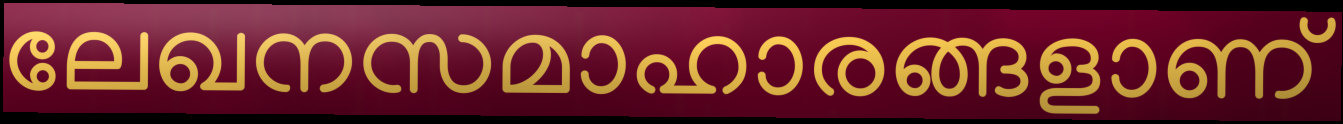
ലേഖനസമാഹാരങ്ങളാണ്